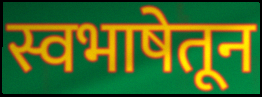
स्वभाषेतून